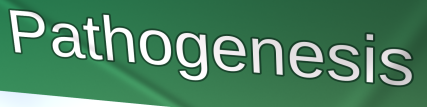
Pathogenesis